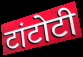
टांटोटी